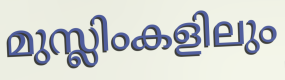
മുസ്ലിംകളിലും